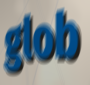
glob